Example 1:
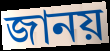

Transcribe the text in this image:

জানয়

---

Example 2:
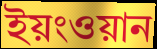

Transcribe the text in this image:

ইয়ংওয়ান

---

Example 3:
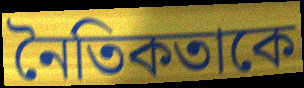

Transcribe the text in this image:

নৈতিকতাকে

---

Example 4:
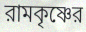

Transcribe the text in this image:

রামকৃষ্ণের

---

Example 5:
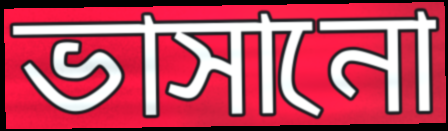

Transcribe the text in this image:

ভাসানো